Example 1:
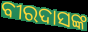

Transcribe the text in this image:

ବୀରଦାସଙ୍କ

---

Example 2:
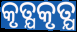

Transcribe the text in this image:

କୃତ୍ଯକୃତ୍ଯ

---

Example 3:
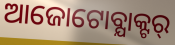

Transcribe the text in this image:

ଆଜୋଟୋବ୍ଯାକ୍ଟର୍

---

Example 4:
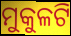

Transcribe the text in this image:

ମୁକୁଳଟି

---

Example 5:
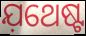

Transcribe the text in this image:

ଯ଼ଥେଷ୍ଟ